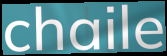
chaile